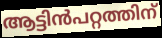
ആട്ടിൻപറ്റത്തിന്